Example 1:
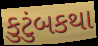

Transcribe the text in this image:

કુટુંબકથા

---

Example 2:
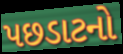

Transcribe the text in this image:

પછડાટનો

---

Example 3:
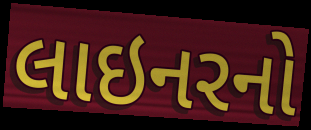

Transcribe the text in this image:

લાઇનરનો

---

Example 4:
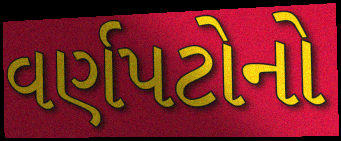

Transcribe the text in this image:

વર્ણપટોનો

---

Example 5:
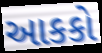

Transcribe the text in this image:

આકકો